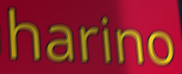
harino